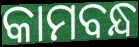
କାମବନ୍ଧ